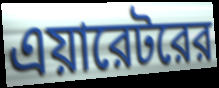
এয়ারেটরের